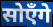
सोएँगे